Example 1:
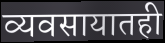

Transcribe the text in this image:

व्यवसायातही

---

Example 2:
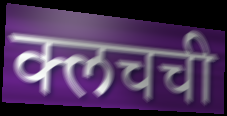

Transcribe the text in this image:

क्लचची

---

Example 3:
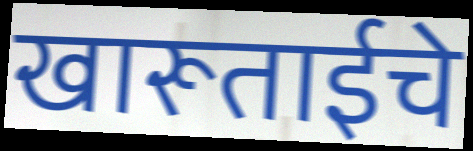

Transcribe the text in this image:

खारूताईचे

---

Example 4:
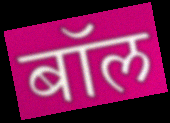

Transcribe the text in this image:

बॉल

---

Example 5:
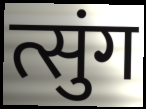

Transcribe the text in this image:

त्सुंग